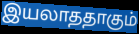
இயலாததாகும்